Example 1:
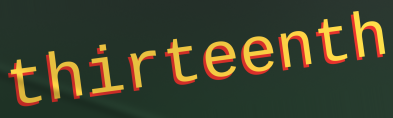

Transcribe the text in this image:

thirteenth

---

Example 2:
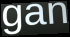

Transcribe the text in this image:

gan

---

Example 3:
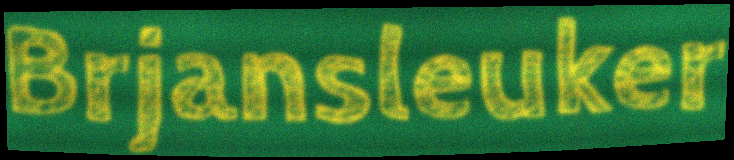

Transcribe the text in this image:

Brjansleuker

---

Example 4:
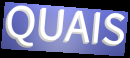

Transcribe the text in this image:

QUAIS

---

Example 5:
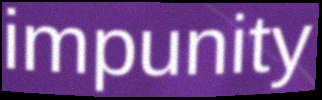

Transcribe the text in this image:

impunity